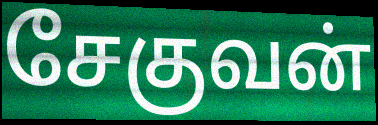
சேகுவன்